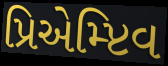
પ્રિએમ્પ્ટિવ